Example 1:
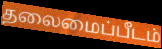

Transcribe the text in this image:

தலைமைப்பீடம்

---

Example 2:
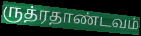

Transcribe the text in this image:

ருத்ரதாண்டவம்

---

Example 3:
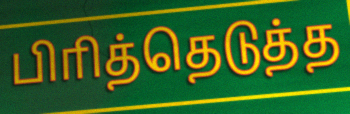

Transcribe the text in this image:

பிரித்தெடுத்த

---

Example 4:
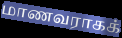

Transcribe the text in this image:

மாணவராகக்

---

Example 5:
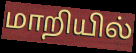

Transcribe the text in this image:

மாறியில்